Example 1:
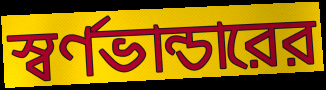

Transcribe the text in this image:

স্বর্ণভান্ডারের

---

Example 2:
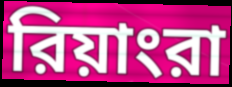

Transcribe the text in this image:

রিয়াংরা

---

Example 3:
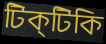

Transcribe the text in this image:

টিক্‌টিকি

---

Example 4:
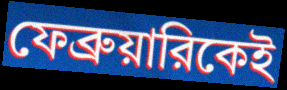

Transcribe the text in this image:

ফেব্রুয়ারিকেই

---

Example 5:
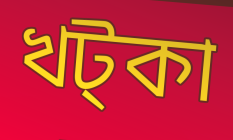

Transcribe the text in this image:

খট্‌কা